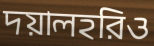
দয়ালহরিও